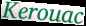
Kerouac